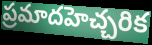
ప్రమాదహెచ్చరిక